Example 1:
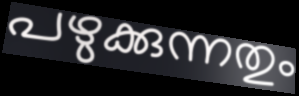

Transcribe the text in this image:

പഴുക്കുന്നതും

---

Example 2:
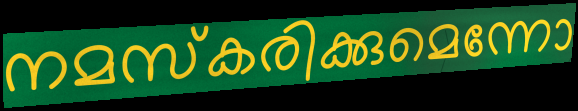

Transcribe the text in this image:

നമസ്കരിക്കുമെന്നോ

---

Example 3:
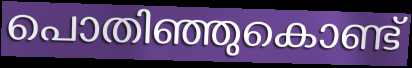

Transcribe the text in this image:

പൊതിഞ്ഞുകൊണ്ട്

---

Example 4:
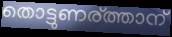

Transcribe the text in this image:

തൊട്ടുണര്ത്താന്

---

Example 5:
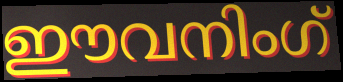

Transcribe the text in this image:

ഈവനിംഗ്